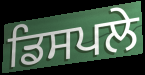
ਡਿਸਪਲੇ